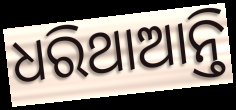
ଧରିଥାଆନ୍ତି